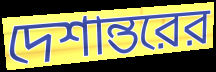
দেশান্তরের